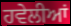
ਹਵੇਲੀਆਂ